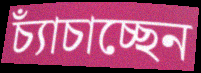
চ্যাঁচাচ্ছেন